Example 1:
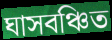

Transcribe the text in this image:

ঘাসবঞ্চিত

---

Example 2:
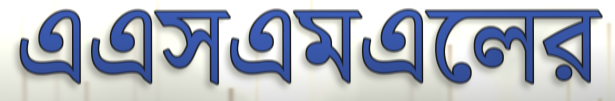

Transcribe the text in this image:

এএসএমএলের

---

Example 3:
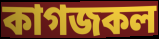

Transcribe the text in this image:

কাগজকল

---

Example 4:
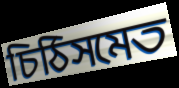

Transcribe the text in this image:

চিঠিসমেত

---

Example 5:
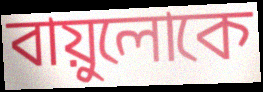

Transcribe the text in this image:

বায়ুলোকে